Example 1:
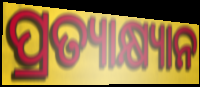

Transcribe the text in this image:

ପ୍ରତ୍ୟାକ୍ଷ୍ୟାନ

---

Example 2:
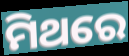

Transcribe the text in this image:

ମିଥରେ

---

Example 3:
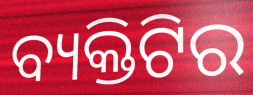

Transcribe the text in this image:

ବ୍ୟକ୍ତିଟିର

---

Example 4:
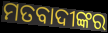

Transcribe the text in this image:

ମତବାଦୀଙ୍କର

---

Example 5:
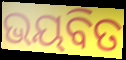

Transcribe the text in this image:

ଭୟବିତ